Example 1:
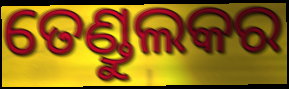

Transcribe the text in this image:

ତେଣ୍ଡୁଲକର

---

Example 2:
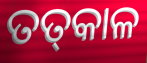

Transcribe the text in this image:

ତତ୍‌କାଳ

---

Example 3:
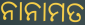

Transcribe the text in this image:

ନାନାମତ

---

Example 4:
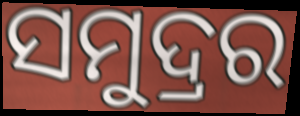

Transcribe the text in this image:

ସମୁଦ୍ରର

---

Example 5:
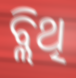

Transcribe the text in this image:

ବ୍ଲିଥି